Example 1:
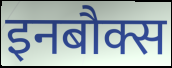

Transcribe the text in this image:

इनबौक्स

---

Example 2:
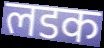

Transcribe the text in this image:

लडक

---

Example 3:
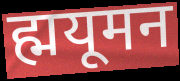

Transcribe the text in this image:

ह्मयूमन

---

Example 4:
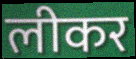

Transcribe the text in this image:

लीकर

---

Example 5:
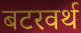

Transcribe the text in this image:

बटरवर्थ